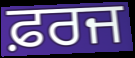
ਫ਼ਰਜ